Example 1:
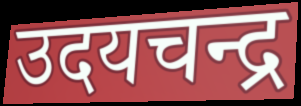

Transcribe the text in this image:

उदयचन्द्र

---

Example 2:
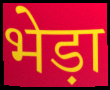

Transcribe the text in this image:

भेड़ा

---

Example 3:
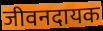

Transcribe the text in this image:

जीवनदायक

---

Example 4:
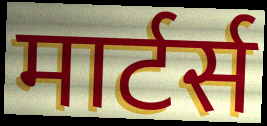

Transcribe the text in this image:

मार्टर्स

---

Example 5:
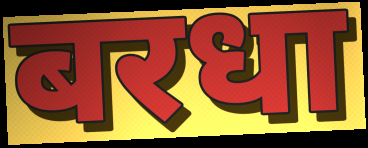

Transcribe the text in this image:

बरधा